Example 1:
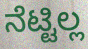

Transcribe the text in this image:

ನೆಟ್ಟಿಲ್ಲ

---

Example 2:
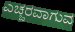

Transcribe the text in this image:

ಎಚ್ಚರವಾಗುವ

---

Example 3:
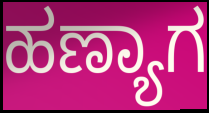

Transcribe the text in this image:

ಹಣ್ಯಾಗ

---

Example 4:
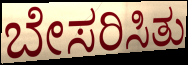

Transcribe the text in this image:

ಬೇಸರಿಸಿತು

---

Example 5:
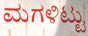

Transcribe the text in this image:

ಮಗಳಿಟ್ಟು